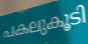
പകലുകൂടി